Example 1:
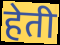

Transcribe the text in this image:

हेती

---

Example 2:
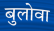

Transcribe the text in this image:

बुलोवा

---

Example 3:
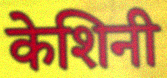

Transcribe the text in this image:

केशिनी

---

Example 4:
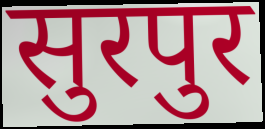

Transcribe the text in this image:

सुरपुर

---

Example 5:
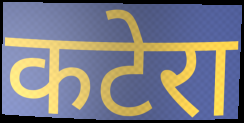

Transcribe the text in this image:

कटेरा